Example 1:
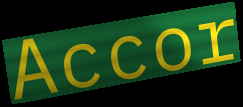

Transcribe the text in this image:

Accor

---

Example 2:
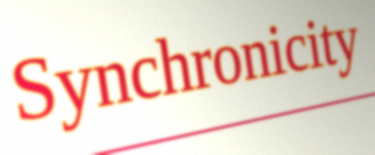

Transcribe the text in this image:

Synchronicity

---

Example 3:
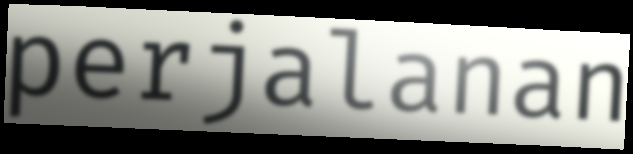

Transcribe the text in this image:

perjalanan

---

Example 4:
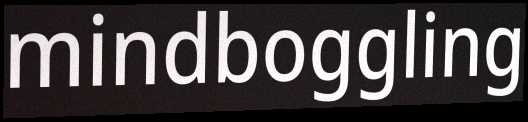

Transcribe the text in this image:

mindboggling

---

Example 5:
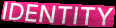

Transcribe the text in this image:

IDENTITY